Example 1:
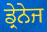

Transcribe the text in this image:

ਡ੍ਰੇਨੇਜ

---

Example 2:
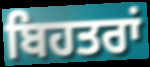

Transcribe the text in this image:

ਬਿਹਤਰਾਂ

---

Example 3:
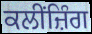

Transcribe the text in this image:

ਕਲੀਂਜ਼ਿੰਗ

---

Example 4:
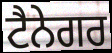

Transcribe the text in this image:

ਟੈਨੇਗਰ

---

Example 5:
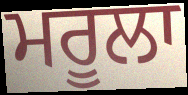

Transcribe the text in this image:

ਮਰੂਲਾ